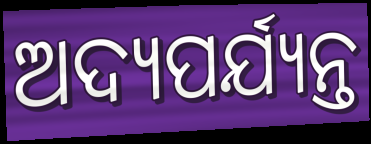
ଅଦ୍ୟପର୍ଯ୍ୟନ୍ତ